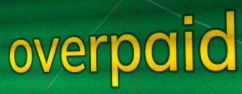
overpaid